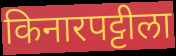
किनारपट्टीला